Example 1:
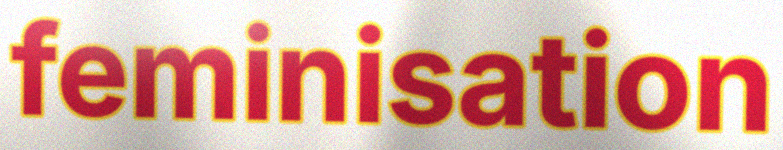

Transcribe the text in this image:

feminisation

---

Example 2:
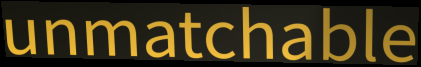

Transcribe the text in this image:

unmatchable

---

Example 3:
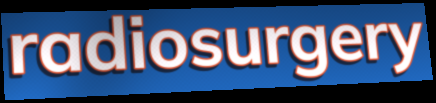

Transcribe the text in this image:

radiosurgery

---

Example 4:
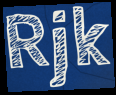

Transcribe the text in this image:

Rjk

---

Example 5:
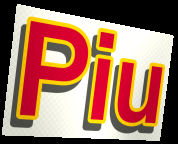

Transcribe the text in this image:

Piu